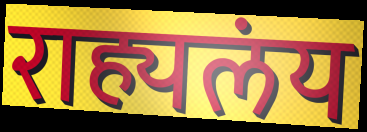
राह्यलंय